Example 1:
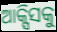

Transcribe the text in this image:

ଆକ୍ସିସକୁ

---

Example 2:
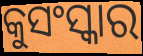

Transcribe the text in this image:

କୁସଂସ୍କାର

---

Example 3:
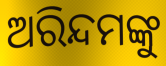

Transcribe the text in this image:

ଅରିନ୍ଦମଙ୍କୁ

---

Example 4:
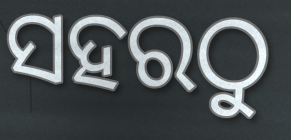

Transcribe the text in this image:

ସହରଠୁ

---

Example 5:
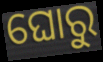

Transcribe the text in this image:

ଘୋରୁ